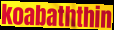
koabaththin